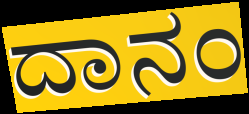
ದಾನಂ